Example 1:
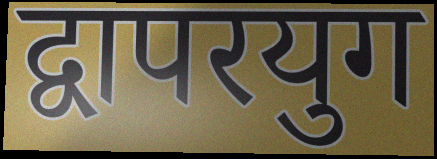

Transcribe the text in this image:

द्वापरयुग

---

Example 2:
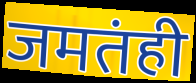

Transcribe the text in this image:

जमतंही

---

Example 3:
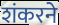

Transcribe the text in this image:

शंकरने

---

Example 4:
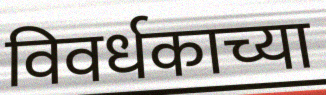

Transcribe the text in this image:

विवर्धकाच्या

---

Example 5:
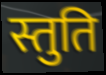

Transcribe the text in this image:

स्तुति